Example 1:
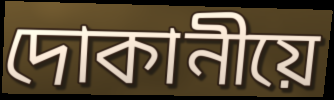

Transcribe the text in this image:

দোকানীয়ে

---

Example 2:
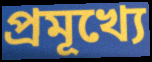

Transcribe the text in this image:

প্ৰমূখ্যে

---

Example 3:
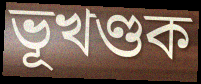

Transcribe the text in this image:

ভূখণ্ডক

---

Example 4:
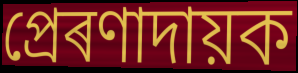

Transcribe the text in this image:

প্ৰেৰণাদায়ক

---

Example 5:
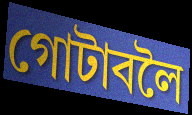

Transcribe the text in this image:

গোটাবলৈ